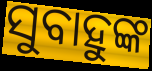
ସୁବାହୁଙ୍କ